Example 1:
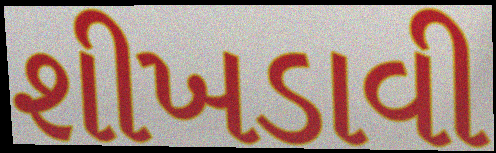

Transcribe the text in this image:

શીખડાવી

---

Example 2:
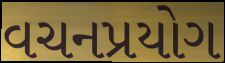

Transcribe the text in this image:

વચનપ્રયોગ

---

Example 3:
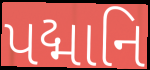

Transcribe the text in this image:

પદ્માનિ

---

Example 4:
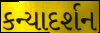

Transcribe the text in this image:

કન્યાદર્શન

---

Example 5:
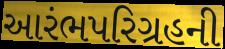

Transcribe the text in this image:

આરંભપરિગ્રહની